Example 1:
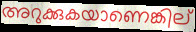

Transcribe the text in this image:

അറുക്കുകയാണെങ്കില്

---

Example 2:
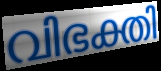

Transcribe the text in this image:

വിഭക്തി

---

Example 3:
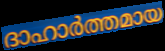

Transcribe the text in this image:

ദാഹാർത്തമായ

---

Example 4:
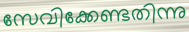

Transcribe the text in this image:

സേവിക്കേണ്ടതിന്നു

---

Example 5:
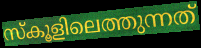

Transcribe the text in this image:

സ്കൂളിലെത്തുന്നത്